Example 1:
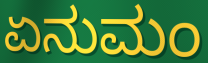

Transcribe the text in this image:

ಏನುಮಂ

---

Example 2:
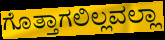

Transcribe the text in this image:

ಗೊತ್ತಾಗಲಿಲ್ಲವಲ್ಲಾ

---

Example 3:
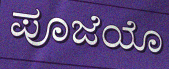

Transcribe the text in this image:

ಪೂಜೆಯೊ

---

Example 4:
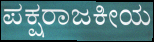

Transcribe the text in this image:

ಪಕ್ಷರಾಜಕೀಯ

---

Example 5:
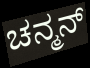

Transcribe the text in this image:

ಚನ್ಮನ್